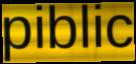
piblic